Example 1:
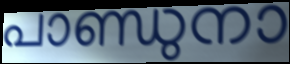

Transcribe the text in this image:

പാണ്ഡുനാ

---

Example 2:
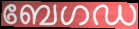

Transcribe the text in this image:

ബേഗഡ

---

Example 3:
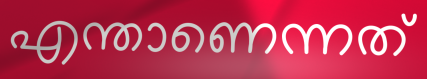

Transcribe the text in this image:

എന്താണെന്നത്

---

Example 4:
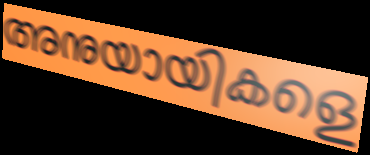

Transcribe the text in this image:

അനുയായികളെ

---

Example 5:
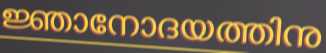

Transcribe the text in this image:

ജ്ഞാനോദയത്തിനു